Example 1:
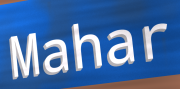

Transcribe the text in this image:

Mahar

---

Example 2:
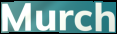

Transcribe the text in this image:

Murch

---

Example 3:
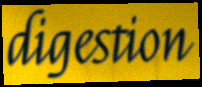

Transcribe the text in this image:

digestion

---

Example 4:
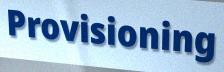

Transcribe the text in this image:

Provisioning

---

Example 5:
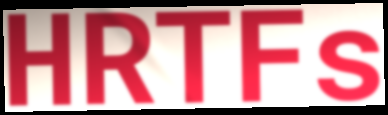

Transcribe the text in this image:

HRTFs